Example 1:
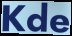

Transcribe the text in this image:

Kde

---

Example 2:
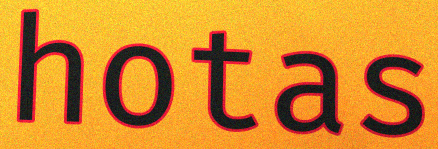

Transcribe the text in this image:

hotas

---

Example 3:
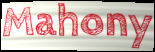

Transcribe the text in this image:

Mahony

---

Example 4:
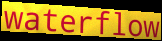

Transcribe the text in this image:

waterflow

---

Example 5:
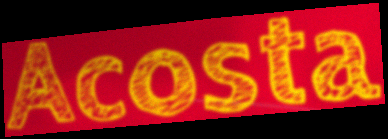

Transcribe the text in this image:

Acosta